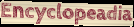
Encyclopeadia